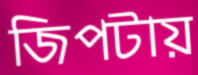
জিপটায়